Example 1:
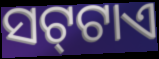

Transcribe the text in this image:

ସଟ୍‍ଟାଏ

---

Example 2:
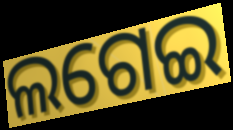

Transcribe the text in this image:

ଲଗେଇ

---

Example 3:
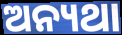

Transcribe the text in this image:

ଅନ୍ୟଥା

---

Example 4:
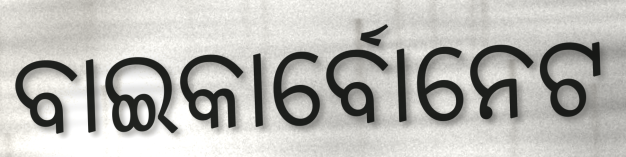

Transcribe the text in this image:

ବାଇକାର୍ବୋନେଟ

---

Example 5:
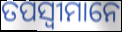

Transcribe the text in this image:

ତପସ୍ୱୀମାନେ